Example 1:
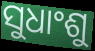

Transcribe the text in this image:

ସୁଧାଂଶୁ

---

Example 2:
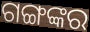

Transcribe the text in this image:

ଗଙ୍ଗଙ୍କର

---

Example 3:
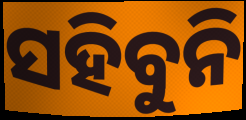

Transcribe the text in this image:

ସହିବୁନି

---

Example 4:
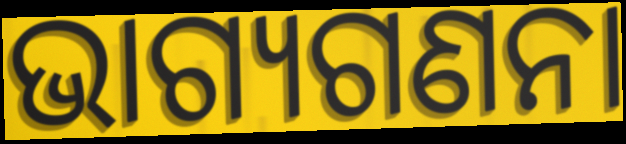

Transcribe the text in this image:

ଭାଗ୍ୟଗଣନା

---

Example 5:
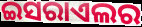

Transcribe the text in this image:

ଇସରାଏଲର